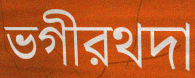
ভগীরথদা